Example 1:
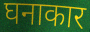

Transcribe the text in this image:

घनाकार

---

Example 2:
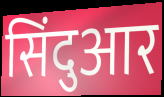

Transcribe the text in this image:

सिंदुआर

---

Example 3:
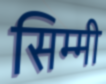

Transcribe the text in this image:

सिम्मी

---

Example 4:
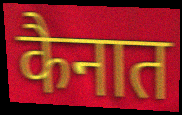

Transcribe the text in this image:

कैनात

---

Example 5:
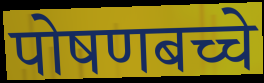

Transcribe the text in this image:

पोषणबच्चे